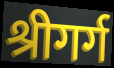
श्रीगर्ग